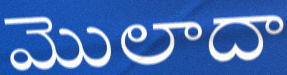
మొలాదా